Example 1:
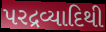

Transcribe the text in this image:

પરદ્રવ્યાદિથી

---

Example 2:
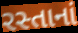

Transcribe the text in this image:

રસ્તાનાં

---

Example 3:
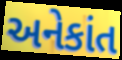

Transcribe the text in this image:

અનેકાંત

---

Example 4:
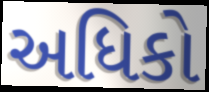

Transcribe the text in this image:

અધિકો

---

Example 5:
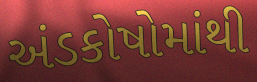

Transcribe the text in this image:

અંડકોષોમાંથી